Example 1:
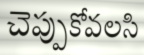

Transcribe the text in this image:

చెప్పుకోవలసి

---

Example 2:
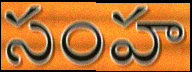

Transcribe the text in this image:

సంహ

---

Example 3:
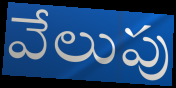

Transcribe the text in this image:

వేలుపు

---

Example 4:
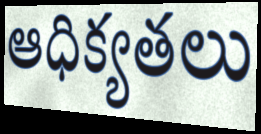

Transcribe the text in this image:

ఆధిక్యతలు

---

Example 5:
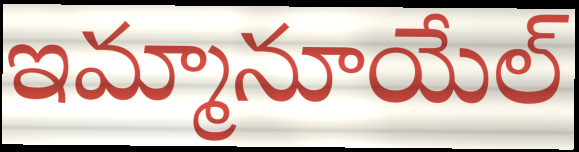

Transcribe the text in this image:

ఇమ్మానూయేల్